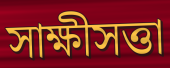
সাক্ষীসত্তা